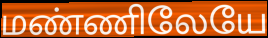
மண்ணிலேயே